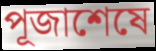
পূজাশেষে